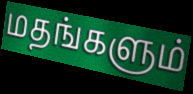
மதங்களும்